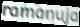
ramanuja